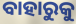
ବାହାରୁକୁ